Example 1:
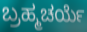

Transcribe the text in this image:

ಬ್ರಹ್ಮಚರ್ಯೆ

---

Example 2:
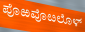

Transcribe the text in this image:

ಪೊಱವೊೞಲೊಳ್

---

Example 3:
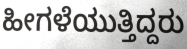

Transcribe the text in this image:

ಹೀಗಳೆಯುತ್ತಿದ್ದರು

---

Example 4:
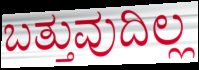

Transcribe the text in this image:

ಬತ್ತುವುದಿಲ್ಲ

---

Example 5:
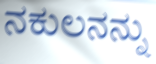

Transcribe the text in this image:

ನಕುಲನನ್ನು